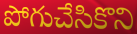
పోగుచేసికొని